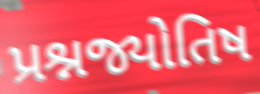
પ્રશ્નજ્યોતિષ